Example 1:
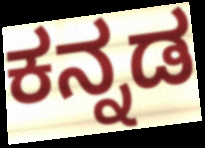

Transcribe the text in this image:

ಕನ್ನಡ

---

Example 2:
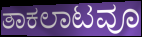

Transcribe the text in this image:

ತಾಕಲಾಟವೂ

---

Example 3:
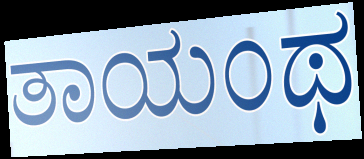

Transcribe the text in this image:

ತಾಯಂಥ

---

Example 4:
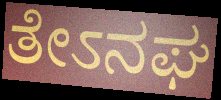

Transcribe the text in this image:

ತೇಽನಘ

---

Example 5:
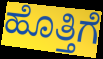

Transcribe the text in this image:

ಹೊತ್ತಿಗೆ